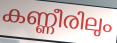
കണ്ണീരിലും